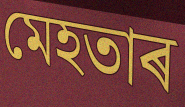
মেহতাৰ